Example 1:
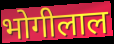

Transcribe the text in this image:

भोगीलाल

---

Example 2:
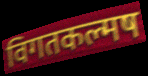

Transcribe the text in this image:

विगतकल्मष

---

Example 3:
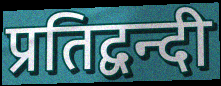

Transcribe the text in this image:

प्रतिद्वन्दी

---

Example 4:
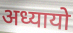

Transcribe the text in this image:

अध्यायो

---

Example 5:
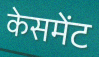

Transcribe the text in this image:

केसमेंट